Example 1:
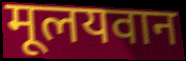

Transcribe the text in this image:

मूलयवान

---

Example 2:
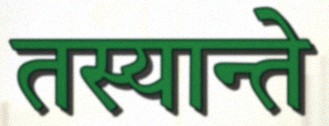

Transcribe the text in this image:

तस्यान्ते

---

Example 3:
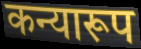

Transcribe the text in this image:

कन्यारूप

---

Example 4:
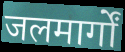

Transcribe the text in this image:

जलमार्गों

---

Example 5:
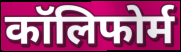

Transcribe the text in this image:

कॉलिफोर्म